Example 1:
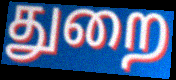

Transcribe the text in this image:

துறை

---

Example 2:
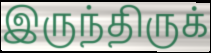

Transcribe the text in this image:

இருந்திருக்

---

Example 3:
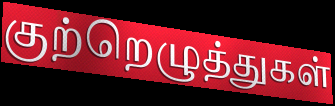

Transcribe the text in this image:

குற்றெழுத்துகள்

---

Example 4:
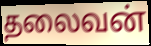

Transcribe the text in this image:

தலைவன்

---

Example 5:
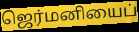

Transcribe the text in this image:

ஜெர்மனியைப்